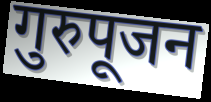
गुरुपूजन